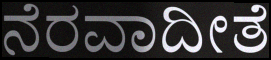
ನೆರವಾದೀತೆ